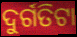
ଦୁର୍ଗତିଟା